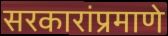
सरकारांप्रमाणे